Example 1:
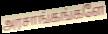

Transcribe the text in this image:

அரசாங்கங்களே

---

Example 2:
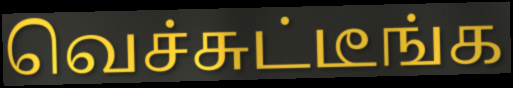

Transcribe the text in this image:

வெச்சுட்டீங்க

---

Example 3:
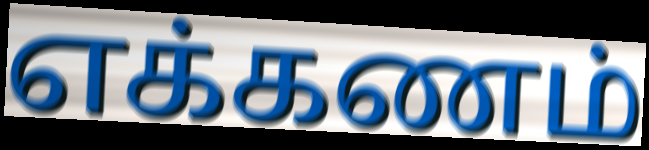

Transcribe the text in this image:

எக்கணம்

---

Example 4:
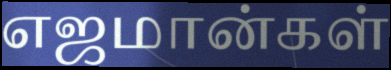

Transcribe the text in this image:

எஜமான்கள்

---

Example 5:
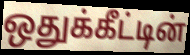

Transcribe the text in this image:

ஒதுக்கீட்டின்